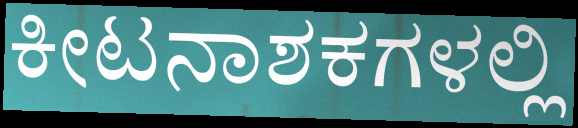
ಕೀಟನಾಶಕಗಳಲ್ಲಿ